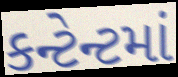
કન્ટેન્ટમાં